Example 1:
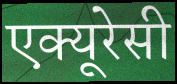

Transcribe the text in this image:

एक्यूरेसी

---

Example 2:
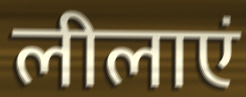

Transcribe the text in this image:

लीलाएं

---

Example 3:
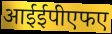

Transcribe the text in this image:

आईईपीएफए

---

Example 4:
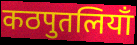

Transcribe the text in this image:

कठपुतलियाँ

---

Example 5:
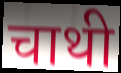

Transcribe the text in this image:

चाथी